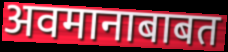
अवमानाबाबत